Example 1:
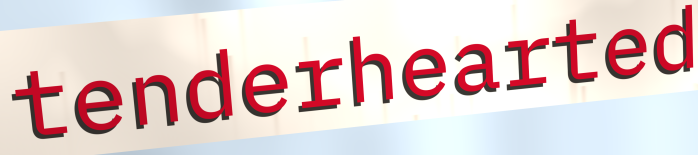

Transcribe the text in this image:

tenderhearted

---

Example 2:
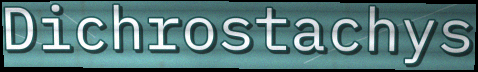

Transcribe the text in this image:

Dichrostachys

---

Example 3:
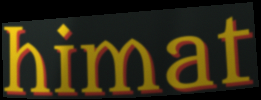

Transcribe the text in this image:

himat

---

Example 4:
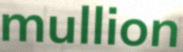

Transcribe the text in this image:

mullion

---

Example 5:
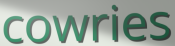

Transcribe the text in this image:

cowries